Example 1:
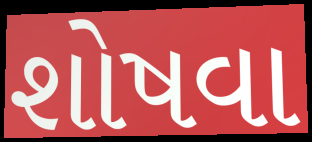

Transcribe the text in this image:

શોષવા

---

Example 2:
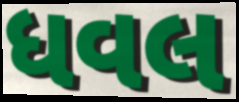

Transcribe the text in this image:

ધવલ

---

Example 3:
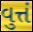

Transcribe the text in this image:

વુત્તં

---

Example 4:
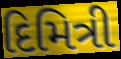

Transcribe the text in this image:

દિમિત્રી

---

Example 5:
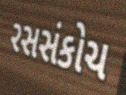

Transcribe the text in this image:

રસસંકોચ